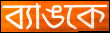
ব্যাঙকে